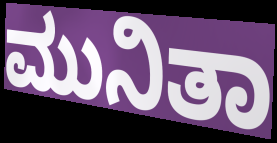
ಮುನಿತಾ